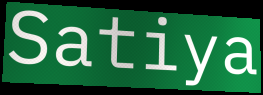
Satiya